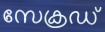
സേക്രഡ്